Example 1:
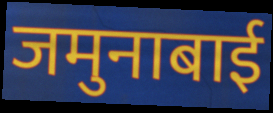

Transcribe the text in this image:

जमुनाबाई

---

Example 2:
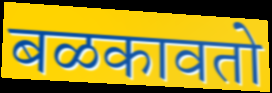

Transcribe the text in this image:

बळकावतो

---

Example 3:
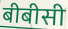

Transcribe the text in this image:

बीबीसी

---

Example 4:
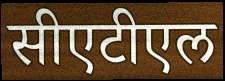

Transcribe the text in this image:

सीएटीएल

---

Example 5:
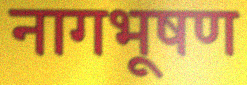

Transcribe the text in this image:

नागभूषण